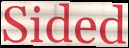
Sided